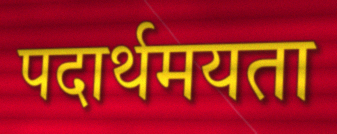
पदार्थमयता